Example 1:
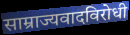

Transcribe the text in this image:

साम्राज्यवादविरोधी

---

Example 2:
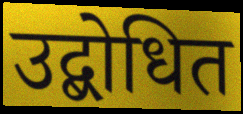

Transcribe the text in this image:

उद्बोधित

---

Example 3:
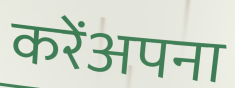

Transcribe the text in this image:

करेंअपना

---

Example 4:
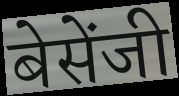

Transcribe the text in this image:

बेसेंजी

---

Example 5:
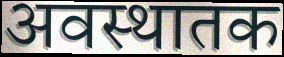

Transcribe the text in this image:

अवस्थातक